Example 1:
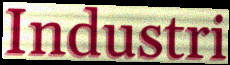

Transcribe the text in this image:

Industri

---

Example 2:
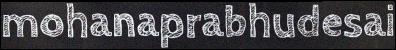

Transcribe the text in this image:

mohanaprabhudesai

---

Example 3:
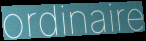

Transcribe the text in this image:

ordinaire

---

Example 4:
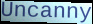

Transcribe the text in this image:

Uncanny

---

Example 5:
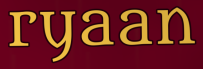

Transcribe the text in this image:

ryaan